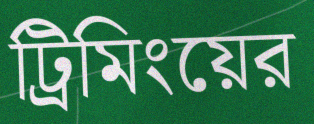
ট্রিমিংয়ের